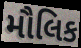
મૌલિક